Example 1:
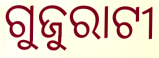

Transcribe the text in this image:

ଗୁଜୁରାଟୀ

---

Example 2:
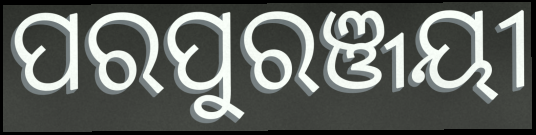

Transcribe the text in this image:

ପରପୁରଞ୍ଜୟୀ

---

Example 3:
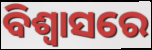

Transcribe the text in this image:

ବିଶ୍ବାସରେ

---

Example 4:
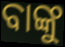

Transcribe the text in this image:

ବାଙ୍କୁ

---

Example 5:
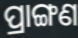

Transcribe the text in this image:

ପ୍ରାଙ୍ଗଣ